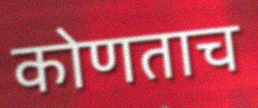
कोणताच